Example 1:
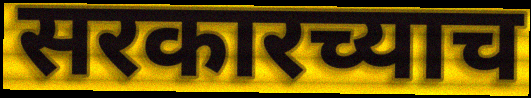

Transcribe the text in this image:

सरकारच्याच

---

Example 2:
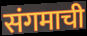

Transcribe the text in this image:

संगमाची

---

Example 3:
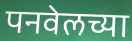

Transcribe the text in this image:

पनवेलच्या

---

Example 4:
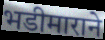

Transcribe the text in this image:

भडीमाराने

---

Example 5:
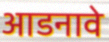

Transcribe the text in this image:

आडनावे